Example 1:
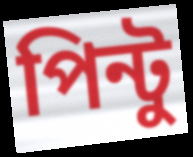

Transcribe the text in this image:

পিন্টু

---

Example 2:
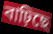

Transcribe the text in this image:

বাঢ়িছে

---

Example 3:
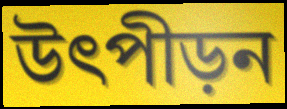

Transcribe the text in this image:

উৎপীড়ন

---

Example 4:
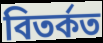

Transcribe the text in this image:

বিতৰ্কত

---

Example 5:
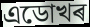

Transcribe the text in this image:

এডোখৰ